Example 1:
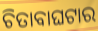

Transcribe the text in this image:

ଚିତାବାଘଟାର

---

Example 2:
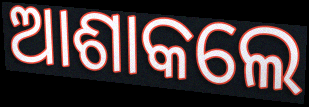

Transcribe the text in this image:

ଆଶାକଲେ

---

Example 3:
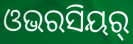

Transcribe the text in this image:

ଓଭରସିୟର୍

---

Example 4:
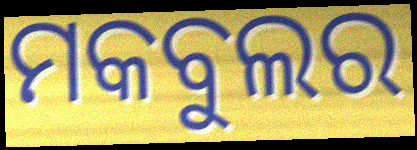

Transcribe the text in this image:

ମକବୁଲର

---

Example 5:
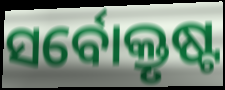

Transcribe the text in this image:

ସର୍ବୋକ୍ତୃଷ୍ଟ